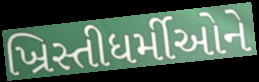
ખ્રિસ્તીધર્મીઓને